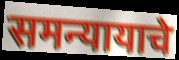
समन्यायाचे